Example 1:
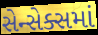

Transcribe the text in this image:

સેન્સેક્સમાં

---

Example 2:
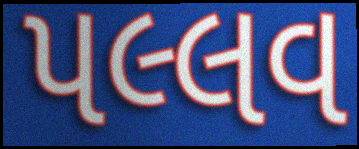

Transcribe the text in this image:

પલ્લવ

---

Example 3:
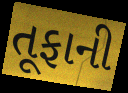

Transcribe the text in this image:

તૂફાની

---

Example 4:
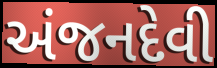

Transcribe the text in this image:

અંજનદેવી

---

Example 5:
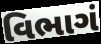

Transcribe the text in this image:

વિભાગં